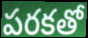
పరకతో